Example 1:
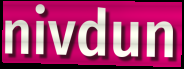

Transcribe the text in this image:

nivdun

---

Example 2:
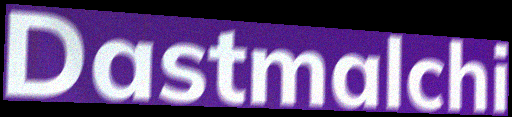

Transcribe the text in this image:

Dastmalchi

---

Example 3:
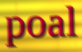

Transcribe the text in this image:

poal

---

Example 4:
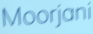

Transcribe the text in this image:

Moorjani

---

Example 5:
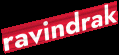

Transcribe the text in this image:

ravindrak